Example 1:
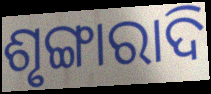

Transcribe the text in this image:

ଶୃଙ୍ଗାରାଦି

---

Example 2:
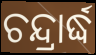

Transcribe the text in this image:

ଚନ୍ଦ୍ରାର୍ଦ୍ଧ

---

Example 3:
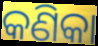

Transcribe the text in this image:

କଣିକା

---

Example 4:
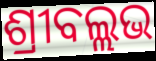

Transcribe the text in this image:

ଶ୍ରୀବଲ୍ଲଭ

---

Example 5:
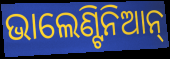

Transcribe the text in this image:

ଭାଲେଣ୍ଟିନିଆନ୍